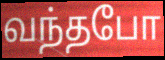
வந்தபோ